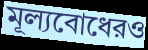
মূল্যবোধেরও